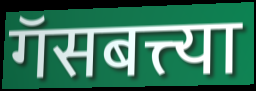
गॅसबत्त्या